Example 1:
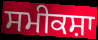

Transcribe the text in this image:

ਸਮੀਕਸ਼ਾ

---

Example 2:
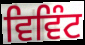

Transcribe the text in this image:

ਵਿਵਿੰਟ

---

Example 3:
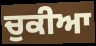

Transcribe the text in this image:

ਚੁਕੀਆ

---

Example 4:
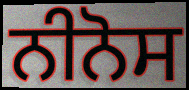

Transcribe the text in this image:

ਨੀਨੋਸ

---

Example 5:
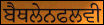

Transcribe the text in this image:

ਬੈਥਲੇਨਫਲਵੀ